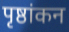
पृष्ठांकन